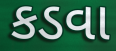
કડવા